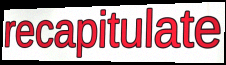
recapitulate